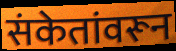
संकेतांवरून